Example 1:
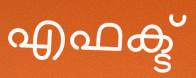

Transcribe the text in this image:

എഫക്ട്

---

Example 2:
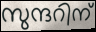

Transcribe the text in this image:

സുന്ദറിന്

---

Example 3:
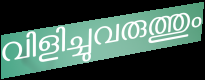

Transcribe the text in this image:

വിളിച്ചുവരുത്തും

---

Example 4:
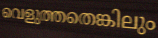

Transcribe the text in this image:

വെളുത്തതെങ്കിലും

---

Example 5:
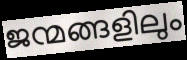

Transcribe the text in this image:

ജന്മങ്ങളിലും